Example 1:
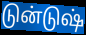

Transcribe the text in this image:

டுன்டுஷ்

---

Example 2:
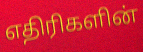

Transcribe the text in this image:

எதிரிகளின்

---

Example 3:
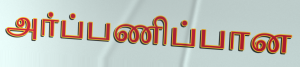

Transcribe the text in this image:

அர்ப்பணிப்பான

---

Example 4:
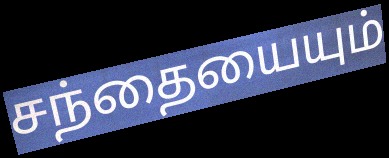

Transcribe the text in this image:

சந்தையையும்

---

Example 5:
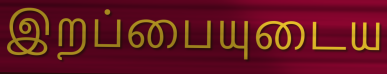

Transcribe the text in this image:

இறப்பையுடைய